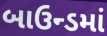
બાઉન્ડમાં